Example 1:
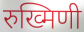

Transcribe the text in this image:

रुख्मिणी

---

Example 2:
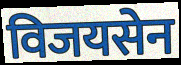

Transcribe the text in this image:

विजयसेन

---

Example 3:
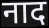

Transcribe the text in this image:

नाद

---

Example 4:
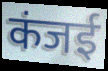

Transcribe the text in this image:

कंजई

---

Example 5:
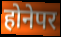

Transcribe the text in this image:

होनेपर